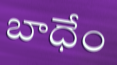
బాధేం